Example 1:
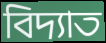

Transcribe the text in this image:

বিদ্যাত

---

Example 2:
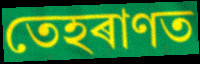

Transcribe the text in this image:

তেহৰাণত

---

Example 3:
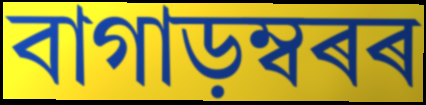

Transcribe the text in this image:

বাগাড়ম্বৰৰ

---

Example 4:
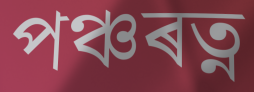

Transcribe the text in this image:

পঞ্চৰত্ন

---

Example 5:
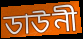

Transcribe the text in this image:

ডাউনী